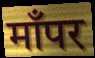
माँपर